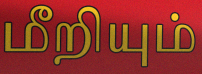
மீறியும்